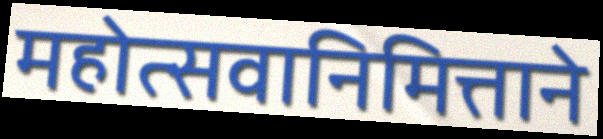
महोत्सवानिमित्ताने